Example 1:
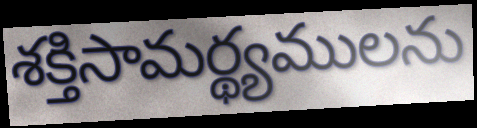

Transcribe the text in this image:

శక్తిసామర్థ్యములను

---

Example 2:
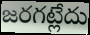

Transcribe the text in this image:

జరగట్లేదు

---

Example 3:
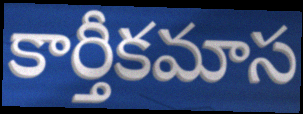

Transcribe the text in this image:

కార్తీకమాస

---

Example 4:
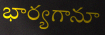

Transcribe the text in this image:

భార్యగానూ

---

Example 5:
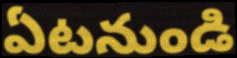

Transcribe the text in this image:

ఏటనుండి